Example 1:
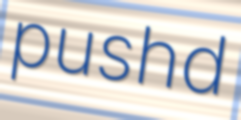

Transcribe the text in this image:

pushd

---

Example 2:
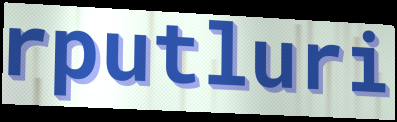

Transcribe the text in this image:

rputluri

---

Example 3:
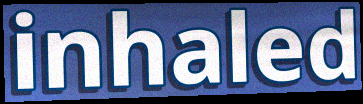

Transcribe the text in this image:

inhaled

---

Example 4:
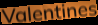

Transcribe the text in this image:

Valentines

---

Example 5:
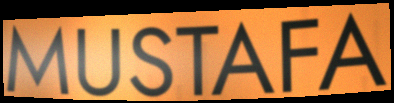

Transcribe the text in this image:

MUSTAFA